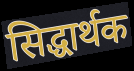
सिद्धार्थक